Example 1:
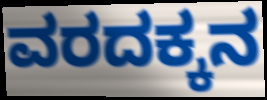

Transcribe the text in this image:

ವರದಕ್ಕನ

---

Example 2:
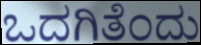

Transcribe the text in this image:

ಒದಗಿತೆಂದು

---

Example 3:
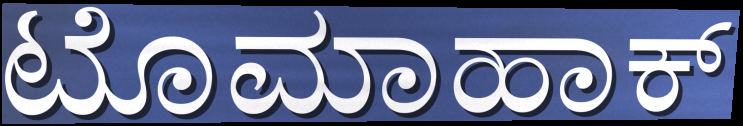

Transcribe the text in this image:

ಟೊಮಾಹಾಕ್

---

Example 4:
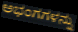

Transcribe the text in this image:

ಅಭಂಗಗಳನ್ನು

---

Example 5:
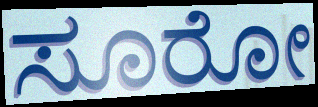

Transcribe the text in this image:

ಸೂರೋ